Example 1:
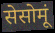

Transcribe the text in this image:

सेसोमूं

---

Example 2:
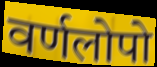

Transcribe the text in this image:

वर्णलोपो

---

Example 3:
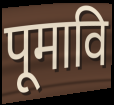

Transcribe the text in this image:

पूमावि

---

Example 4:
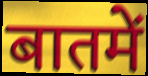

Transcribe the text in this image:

बातमें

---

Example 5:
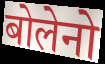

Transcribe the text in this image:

बोलेनो